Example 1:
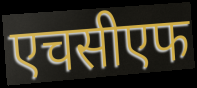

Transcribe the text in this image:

एचसीएफ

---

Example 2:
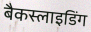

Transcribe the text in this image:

बैकस्लाइडिंग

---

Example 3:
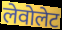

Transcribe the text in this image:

लेवोलेट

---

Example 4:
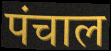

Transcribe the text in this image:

पंचाल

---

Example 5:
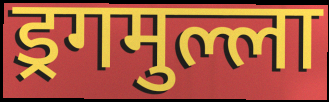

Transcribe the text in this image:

ड्रगमुल्ला